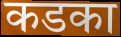
कडका